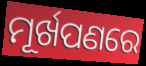
ମୂର୍ଖପଣରେ